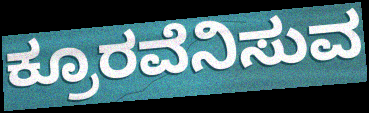
ಕ್ರೂರವೆನಿಸುವ